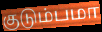
குடும்பமா